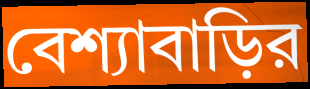
বেশ্যাবাড়ির